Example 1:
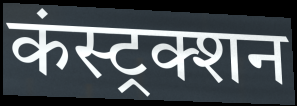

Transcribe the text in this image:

कंस्‍ट्रक्‍शन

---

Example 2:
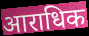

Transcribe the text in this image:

आराधिक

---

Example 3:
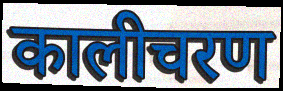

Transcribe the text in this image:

कालीचरण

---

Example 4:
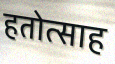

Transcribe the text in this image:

हतोत्साह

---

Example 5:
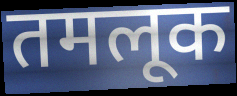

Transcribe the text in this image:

तमलूक